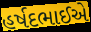
હર્ષદભાઈએ